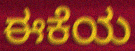
ಈಕೆಯ